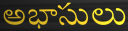
అభాసులు